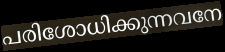
പരിശോധിക്കുന്നവനേ